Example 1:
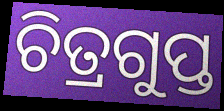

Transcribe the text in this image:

ଚିତ୍ରଗୁପ୍ତ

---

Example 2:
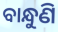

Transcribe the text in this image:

ବାନ୍ଧୁଣି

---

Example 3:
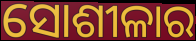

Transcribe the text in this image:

ସୋଶୀଳାର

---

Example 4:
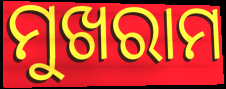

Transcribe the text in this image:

ମୁଖରାମ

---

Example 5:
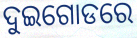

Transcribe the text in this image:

ଦୁଇଗୋଡରେ